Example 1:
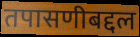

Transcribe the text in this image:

तपासणीबद्दल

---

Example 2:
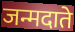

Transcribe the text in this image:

जन्मदाते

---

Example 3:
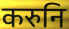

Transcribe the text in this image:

करुनि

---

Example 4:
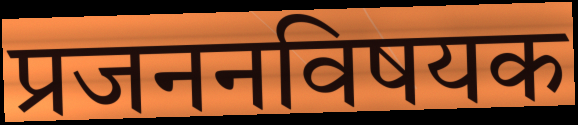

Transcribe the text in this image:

प्रजननविषयक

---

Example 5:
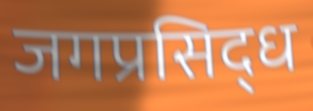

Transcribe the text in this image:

जगप्रसिद्ध